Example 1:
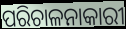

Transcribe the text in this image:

ପରିଚାଳନାକାରୀ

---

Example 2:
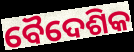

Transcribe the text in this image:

ବୈଦେଶିକ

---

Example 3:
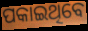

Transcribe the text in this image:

ପକାଇଥିବେ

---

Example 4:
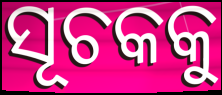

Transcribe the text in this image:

ସୂଚକକୁ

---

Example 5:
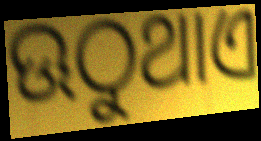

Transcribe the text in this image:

ଊଠୁଥାଏ